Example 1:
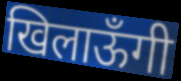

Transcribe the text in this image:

खिलाऊँगी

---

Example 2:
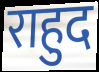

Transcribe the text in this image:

राहुद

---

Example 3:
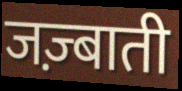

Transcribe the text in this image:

जज़्बाती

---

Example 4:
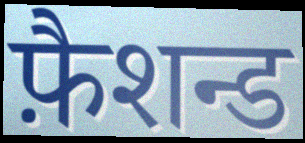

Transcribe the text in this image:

फ़ैशन्ड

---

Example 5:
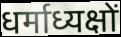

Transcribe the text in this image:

धर्माध्यक्षों